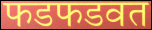
फडफडवत